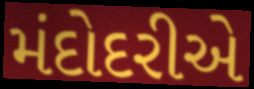
મંદોદરીએ